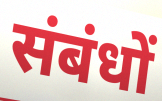
संबंधों